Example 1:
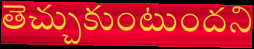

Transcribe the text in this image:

తెచ్చుకుంటుందని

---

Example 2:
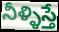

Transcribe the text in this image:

నీళ్ళిస్తే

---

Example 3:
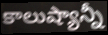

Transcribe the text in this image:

కాలుష్యాన్నీ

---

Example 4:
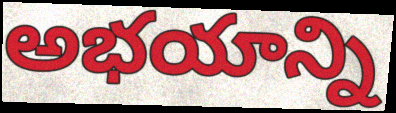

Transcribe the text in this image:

అభయాన్ని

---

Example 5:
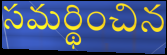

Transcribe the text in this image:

సమర్థించిన